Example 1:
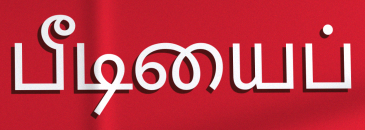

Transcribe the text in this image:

பீடியைப்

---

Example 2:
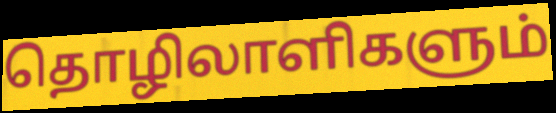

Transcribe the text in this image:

தொழிலாளிகளும்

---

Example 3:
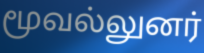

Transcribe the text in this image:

மூவல்லுனர்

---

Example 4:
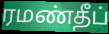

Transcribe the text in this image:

ரமண்தீப்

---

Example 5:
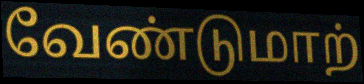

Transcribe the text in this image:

வேண்டுமாற்